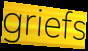
griefs